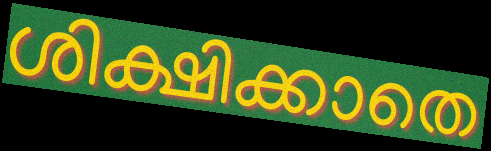
ശിക്ഷിക്കാതെ